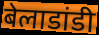
बेलाडांडी